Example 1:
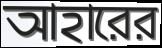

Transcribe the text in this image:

আহারের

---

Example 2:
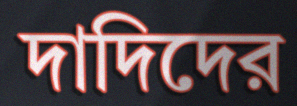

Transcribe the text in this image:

দাদিদের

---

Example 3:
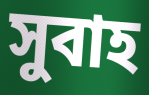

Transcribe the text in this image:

সুবাহ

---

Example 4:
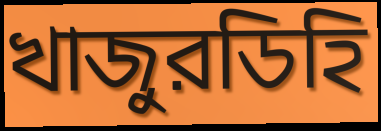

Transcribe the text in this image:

খাজুরডিহি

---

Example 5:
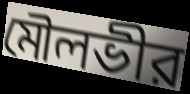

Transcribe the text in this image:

মৌলভীর